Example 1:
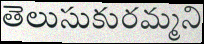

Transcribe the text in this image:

తెలుసుకురమ్మని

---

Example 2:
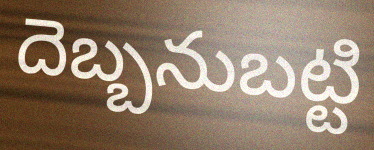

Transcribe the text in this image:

దెబ్బనుబట్టి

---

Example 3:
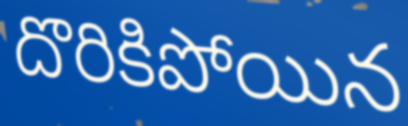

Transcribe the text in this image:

దొరికిపోయిన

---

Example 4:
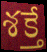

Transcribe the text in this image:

శక్తే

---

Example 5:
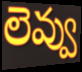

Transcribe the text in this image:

లెవ్వు